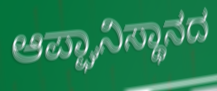
ಆಪ್ಘಾನಿಸ್ಥಾನದ